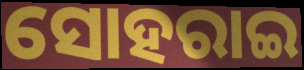
ସୋହରାଇ